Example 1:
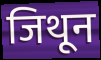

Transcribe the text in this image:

जिथून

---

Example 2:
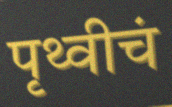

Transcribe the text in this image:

पृथ्वीचं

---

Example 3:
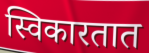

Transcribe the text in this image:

स्विकारतात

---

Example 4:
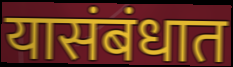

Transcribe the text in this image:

यासंबंधात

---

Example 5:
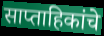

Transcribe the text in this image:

साप्ताहिकांचे